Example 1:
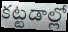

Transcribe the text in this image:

కట్టడాల్లో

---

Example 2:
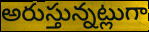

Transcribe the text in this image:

అరుస్తున్నట్లుగా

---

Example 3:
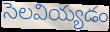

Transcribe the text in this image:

సెలవియ్యడం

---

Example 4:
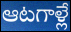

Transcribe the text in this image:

ఆటగాళ్లే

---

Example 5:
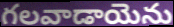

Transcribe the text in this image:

గలవాడాయెను